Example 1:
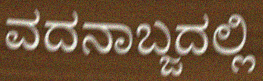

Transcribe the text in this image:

ವದನಾಬ್ಜದಲ್ಲಿ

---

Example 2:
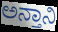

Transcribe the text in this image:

ಅನ್ತಾನಿ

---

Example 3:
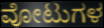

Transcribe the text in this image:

ವೋಟುಗಳ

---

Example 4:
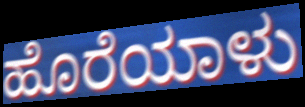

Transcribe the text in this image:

ಹೊರೆಯಾಳು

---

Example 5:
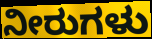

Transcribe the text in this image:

ನೀರುಗಳು